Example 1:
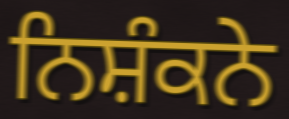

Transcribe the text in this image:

ਨਿਸ਼ੰਕਨੇ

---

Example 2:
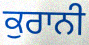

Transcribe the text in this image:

ਕੁਰਾਨੀ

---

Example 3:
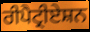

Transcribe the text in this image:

ਰੀਪੈਟ੍ਰੀਏਸ਼ਨ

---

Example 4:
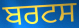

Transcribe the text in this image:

ਬਰਟਸ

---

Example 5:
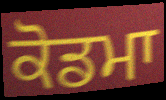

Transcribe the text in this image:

ਕੋਡਮਾ